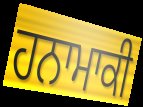
ਹਨਾਮਾਕੀ